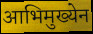
आभिमुख्येन